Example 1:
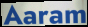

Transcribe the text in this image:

Aaram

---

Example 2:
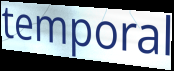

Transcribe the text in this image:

temporal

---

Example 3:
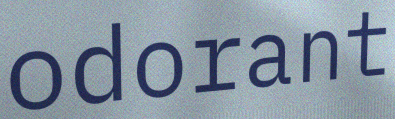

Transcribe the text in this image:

odorant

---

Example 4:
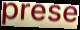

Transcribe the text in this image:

prese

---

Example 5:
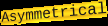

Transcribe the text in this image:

Asymmetrical